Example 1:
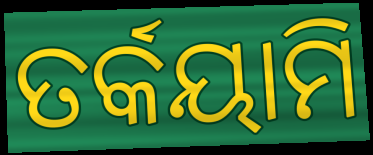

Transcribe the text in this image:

ତର୍କୟାମି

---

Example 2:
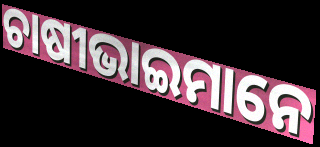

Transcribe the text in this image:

ଚାଷୀଭାଇମାନେ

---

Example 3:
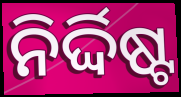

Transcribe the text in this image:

ନିର୍ଦ୍ଦିଷ୍ଟ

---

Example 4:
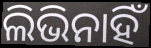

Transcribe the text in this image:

ଲିଭିନାହିଁ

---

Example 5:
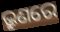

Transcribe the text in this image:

ଭ୍ରୁଣରେ